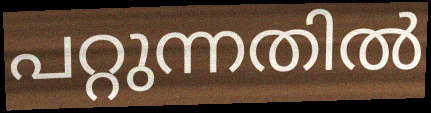
പറ്റുന്നതിൽ